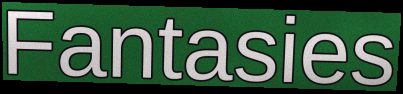
Fantasies